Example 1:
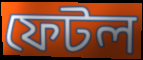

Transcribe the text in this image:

ফেটল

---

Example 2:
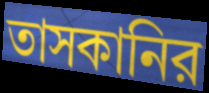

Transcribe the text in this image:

তাসকানির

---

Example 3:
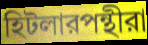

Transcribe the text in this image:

হিটলারপন্থীরা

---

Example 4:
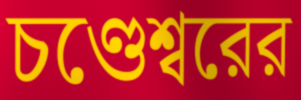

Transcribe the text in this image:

চণ্ডেশ্বরের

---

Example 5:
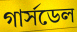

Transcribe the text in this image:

গার্সডেল